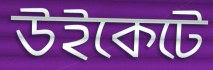
উইকেটে